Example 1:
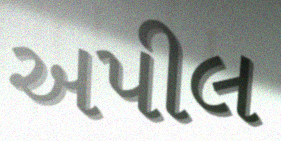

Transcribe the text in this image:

અપીલ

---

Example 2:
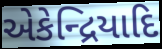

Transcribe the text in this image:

એકેન્દ્રિયાદિ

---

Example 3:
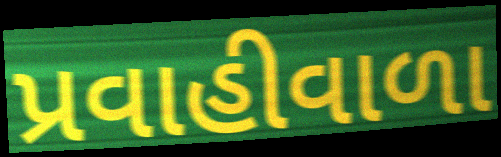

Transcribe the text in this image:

પ્રવાહીવાળા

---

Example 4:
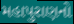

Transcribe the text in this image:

મહાપુરાણનો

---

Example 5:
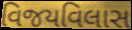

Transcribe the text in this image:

વિજયવિલાસ